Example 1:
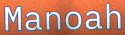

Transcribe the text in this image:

Manoah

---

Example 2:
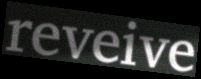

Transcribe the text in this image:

reveive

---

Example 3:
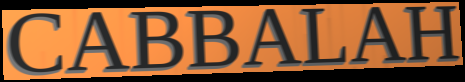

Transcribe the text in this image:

CABBALAH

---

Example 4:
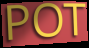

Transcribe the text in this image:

POT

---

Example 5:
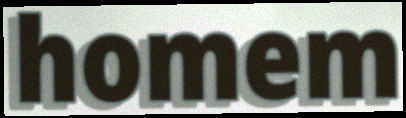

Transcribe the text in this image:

homem